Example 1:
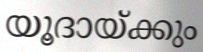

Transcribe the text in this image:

യൂദായ്ക്കും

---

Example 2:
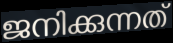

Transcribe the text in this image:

ജനിക്കുന്നത്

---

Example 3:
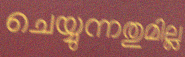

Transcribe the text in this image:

ചെയ്യുന്നതുമില്ല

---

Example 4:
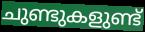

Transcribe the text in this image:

ചുണ്ടുകളുണ്ട്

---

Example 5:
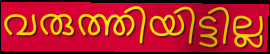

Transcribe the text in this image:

വരുത്തിയിട്ടില്ല